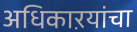
अधिकाऱयांचा